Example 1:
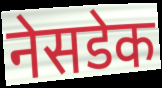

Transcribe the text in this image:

नेसडेक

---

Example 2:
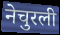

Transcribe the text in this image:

नेचुरली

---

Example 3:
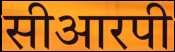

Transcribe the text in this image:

सीआरपी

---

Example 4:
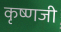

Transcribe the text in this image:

कृष्णजी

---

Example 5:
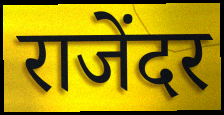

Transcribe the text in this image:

राजेंदर